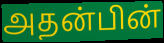
அதன்பின்